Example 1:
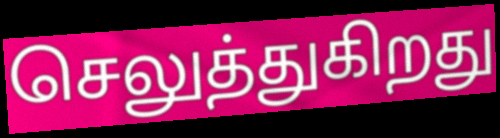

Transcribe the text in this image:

செலுத்துகிறது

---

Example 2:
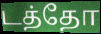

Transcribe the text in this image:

டத்தோ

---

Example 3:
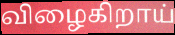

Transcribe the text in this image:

விழைகிறாய்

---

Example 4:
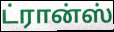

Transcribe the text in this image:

ட்ரான்ஸ்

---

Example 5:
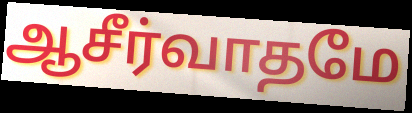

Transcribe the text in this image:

ஆசீர்வாதமே